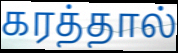
கரத்தால்